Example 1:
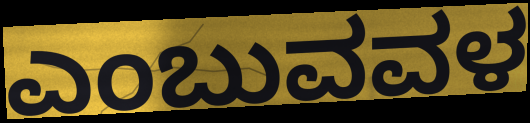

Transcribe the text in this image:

ಎಂಬುವವಳ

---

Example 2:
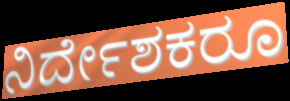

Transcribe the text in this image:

ನಿರ್ದೇಶಕರೂ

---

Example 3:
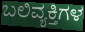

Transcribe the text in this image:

ಬಲಿವ್ಯಕ್ತಿಗಳ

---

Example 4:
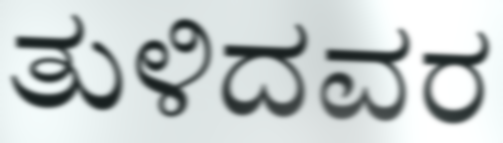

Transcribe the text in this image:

ತುಳಿದವರ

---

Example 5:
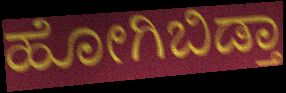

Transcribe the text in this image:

ಹೋಗಿಬಿಡ್ತಾ